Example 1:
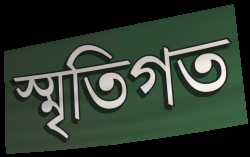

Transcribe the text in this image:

স্মৃতিগত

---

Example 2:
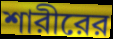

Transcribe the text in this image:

শারীরের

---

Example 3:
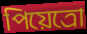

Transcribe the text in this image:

পিয়েত্রো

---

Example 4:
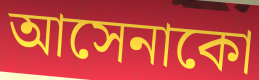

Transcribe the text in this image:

আসেনাকো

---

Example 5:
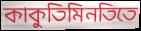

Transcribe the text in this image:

কাকুতিমিনতিতে